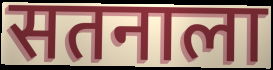
सतनाला